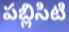
పబ్లిసిటి